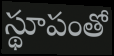
స్థూపంతో